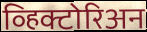
व्हिक्टोरिअन